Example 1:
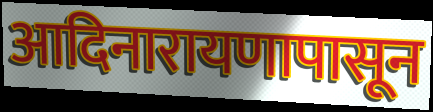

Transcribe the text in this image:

आदिनारायणापासून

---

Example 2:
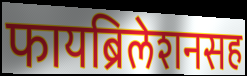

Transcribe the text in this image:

फायब्रिलेशनसह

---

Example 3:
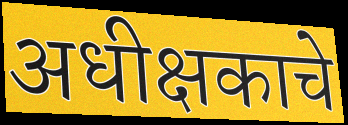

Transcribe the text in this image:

अधीक्षकाचे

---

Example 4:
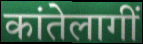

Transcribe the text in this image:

कांतेलागीं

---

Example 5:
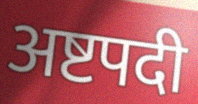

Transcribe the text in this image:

अष्टपदी